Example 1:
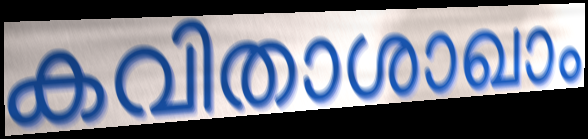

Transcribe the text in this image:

കവിതാശാഖാം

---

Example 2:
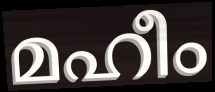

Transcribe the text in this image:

മഹീം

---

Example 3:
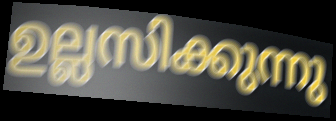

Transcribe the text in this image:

ഉല്ലസിക്കുന്നു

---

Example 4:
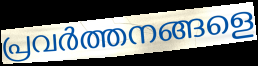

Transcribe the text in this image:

പ്രവർത്തനങ്ങളെ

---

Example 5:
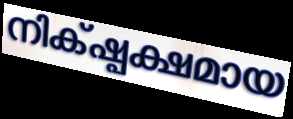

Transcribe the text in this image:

നിക്ഷ്പക്ഷമായ